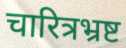
चारित्रभ्रष्ट